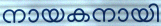
നായകനായി